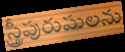
స్త్రీపురుషులను